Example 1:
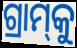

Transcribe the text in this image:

ଗ୍ରାମ୍‌କୁ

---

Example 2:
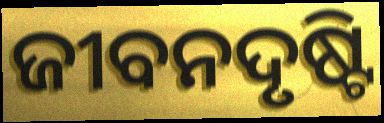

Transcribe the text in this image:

ଜୀବନଦୃଷ୍ଟି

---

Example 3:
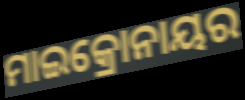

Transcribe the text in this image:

ମାଇକ୍ରୋନାୟର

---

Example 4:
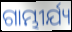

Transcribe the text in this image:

ଗାମ୍ଭୀର୍ଯ୍ୟ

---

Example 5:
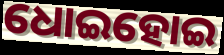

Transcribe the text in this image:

ଧୋଇହୋଇ